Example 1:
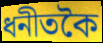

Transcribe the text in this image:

ধনীতকৈ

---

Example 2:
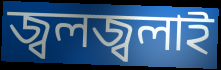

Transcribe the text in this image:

জ্বলজ্বলাই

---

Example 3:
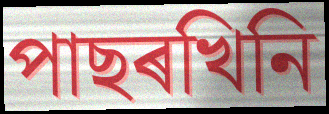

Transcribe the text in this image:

পাছৰখিনি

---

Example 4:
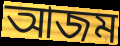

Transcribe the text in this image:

আজম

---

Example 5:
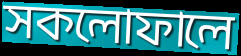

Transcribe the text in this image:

সকলোফালে